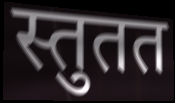
स्तुतत